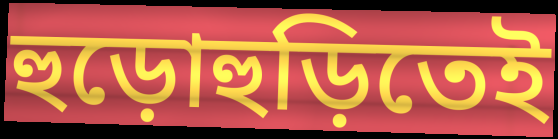
হুড়োহুড়িতেই